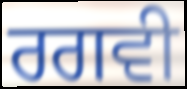
ਰਗਵੀ